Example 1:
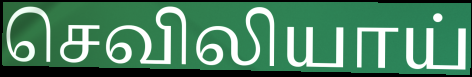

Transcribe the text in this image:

செவிலியாய்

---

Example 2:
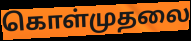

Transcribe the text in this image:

கொள்முதலை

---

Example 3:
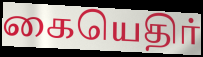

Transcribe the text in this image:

கையெதிர்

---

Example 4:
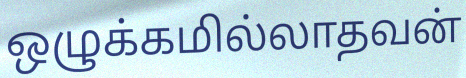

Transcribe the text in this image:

ஒழுக்கமில்லாதவன்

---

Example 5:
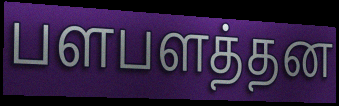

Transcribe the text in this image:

பளபளத்தன